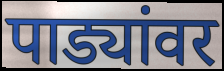
पाड्यांवर